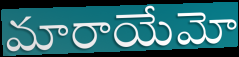
మారాయేమో